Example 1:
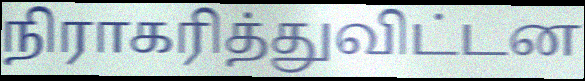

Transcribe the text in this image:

நிராகரித்துவிட்டன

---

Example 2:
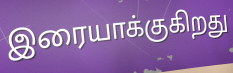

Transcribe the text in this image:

இரையாக்குகிறது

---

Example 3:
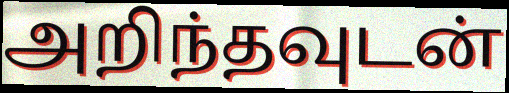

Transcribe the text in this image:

அறிந்தவுடன்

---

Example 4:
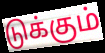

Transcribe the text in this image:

டுக்கும்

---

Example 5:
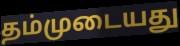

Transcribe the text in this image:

தம்முடையது